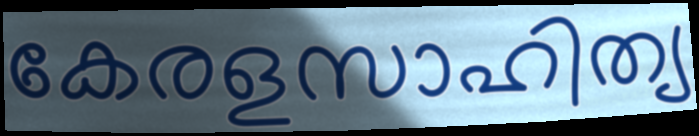
കേരളസാഹിത്യ